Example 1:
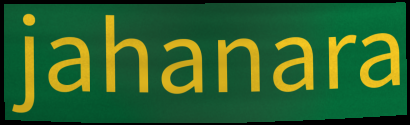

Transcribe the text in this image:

jahanara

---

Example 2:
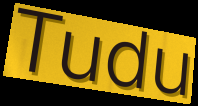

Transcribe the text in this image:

Tudu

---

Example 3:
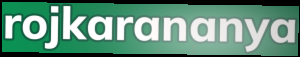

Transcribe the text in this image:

rojkarananya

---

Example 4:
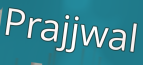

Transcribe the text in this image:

Prajjwal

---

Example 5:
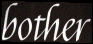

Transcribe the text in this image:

bother